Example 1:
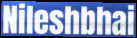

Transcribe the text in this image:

Nileshbhai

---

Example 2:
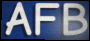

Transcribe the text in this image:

AFB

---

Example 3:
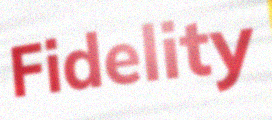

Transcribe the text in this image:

Fidelity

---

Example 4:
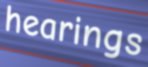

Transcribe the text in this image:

hearings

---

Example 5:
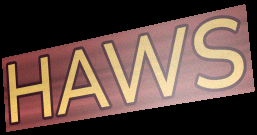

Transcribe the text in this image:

HAWS